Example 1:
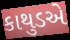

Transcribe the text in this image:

કાથુડએ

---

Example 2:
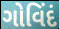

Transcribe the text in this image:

ગોવિંદં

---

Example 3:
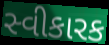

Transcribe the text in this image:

સ્વીકારક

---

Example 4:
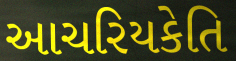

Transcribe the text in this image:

આચરિયકેતિ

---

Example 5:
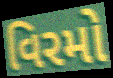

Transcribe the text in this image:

વિરમો